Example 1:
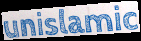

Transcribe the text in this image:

unislamic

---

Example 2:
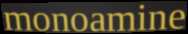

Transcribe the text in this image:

monoamine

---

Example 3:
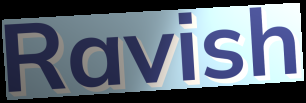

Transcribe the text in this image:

Ravish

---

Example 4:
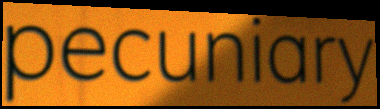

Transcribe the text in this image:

pecuniary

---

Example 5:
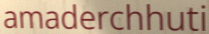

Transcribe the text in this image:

amaderchhuti